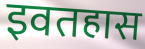
इवतहास